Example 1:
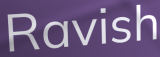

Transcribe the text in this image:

Ravish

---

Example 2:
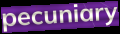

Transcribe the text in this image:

pecuniary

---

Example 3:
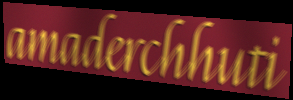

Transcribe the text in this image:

amaderchhuti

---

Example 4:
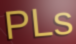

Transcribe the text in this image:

PLs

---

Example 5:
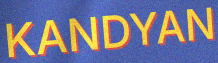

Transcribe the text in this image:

KANDYAN